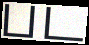
பட